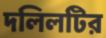
দলিলটির